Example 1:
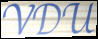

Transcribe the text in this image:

VDU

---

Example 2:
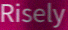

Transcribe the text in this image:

Risely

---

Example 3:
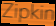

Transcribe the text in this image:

Zipkin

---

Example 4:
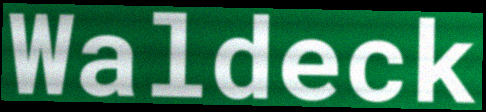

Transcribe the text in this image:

Waldeck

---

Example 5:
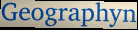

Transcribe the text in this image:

Geographyn